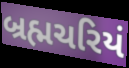
બ્રહ્મચરિયં